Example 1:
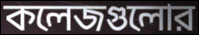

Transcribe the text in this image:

কলেজগুলোর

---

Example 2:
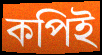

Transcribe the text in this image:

কপিই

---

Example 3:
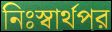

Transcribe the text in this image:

নিঃস্বার্থপর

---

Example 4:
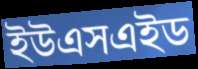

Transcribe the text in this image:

ইউএসএইড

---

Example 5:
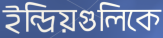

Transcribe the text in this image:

ইন্দ্রিয়গুলিকে